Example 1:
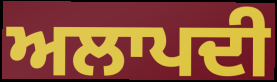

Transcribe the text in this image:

ਅਲਾਪਦੀ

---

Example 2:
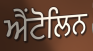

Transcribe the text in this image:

ਐਂਟੋਲਿਨ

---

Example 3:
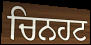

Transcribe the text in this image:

ਚਿਨਹਟ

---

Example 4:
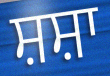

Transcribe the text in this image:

ਸ਼ਸ਼ਾ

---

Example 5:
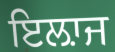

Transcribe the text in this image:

ਇਲ਼ਾਜ